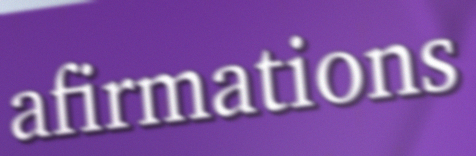
afirmations